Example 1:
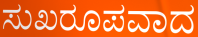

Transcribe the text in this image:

ಸುಖರೂಪವಾದ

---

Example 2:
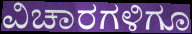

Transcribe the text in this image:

ವಿಚಾರಗಳಿಗೂ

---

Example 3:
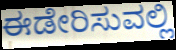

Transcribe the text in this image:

ಈಡೇರಿಸುವಲ್ಲಿ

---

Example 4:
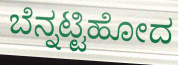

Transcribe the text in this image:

ಬೆನ್ನಟ್ಟಿಹೋದ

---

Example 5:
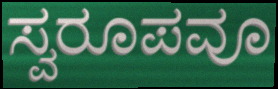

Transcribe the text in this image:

ಸ್ವರೂಪವೂ